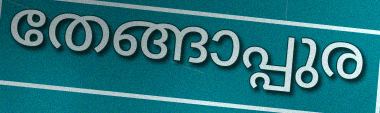
തേങ്ങാപ്പുര